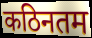
कठिनतम